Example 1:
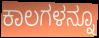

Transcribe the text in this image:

ಕಾಲಗಳನ್ನೂ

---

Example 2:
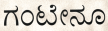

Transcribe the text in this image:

ಗಂಟೇನೂ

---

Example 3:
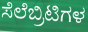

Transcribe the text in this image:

ಸೆಲೆಬ್ರಿಟಿಗಳ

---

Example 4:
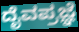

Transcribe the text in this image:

ದೈವಪ್ರಜ್ಞೆ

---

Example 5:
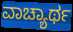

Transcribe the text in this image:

ವಾಚ್ಯಾರ್ಥ